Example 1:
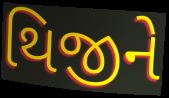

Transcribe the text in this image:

થિજીને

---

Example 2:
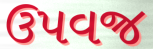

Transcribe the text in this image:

ઉપવજ્ર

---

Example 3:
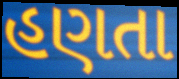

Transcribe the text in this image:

હણતા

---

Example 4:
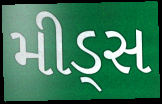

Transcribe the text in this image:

મીડ્સ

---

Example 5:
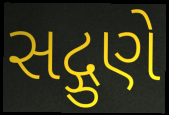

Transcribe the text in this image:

સદ્ગુણે